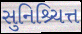
સુનિશ્ર્ચિત્ત